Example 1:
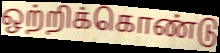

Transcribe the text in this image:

ஒற்றிக்கொண்டு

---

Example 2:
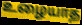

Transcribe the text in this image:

உழையாத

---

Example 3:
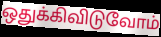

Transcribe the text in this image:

ஒதுக்கிவிடுவோம்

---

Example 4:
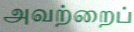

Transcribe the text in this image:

அவற்றைப்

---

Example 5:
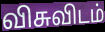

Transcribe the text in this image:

விசுவிடம்